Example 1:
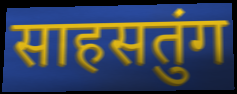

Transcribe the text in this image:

साहसतुंग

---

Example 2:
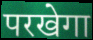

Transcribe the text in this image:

परखेगा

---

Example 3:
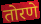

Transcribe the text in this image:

तोरणे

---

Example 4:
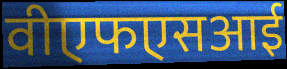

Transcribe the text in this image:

वीएफएसआई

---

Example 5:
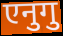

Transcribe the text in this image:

एनुगु